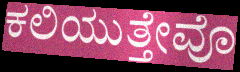
ಕಲಿಯುತ್ತೇವೊ